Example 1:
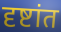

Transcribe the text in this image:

दृष्टांत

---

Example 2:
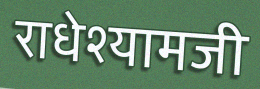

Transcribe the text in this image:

राधेश्यामजी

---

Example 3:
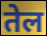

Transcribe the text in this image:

तेल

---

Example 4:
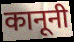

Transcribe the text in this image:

कानूनी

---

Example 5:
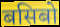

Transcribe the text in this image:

बसिबो